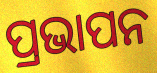
ପ୍ରଭାପନ